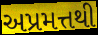
અપ્રમત્તથી